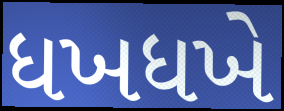
ધખધખે